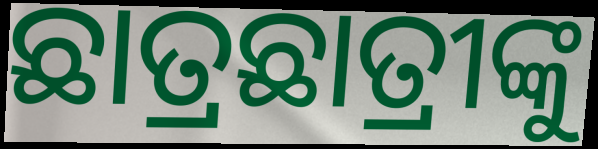
ଛାତ୍ରଛାତ୍ରୀଙ୍କୁ